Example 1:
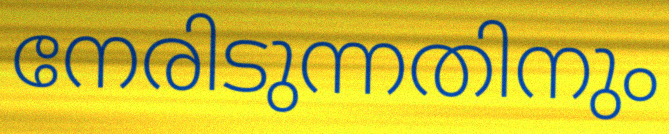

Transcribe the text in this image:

നേരിടുന്നതിനും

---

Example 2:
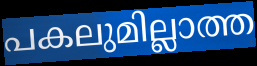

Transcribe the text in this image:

പകലുമില്ലാത്ത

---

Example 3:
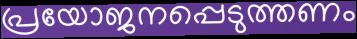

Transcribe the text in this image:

പ്രയോജനപ്പെടുത്തണം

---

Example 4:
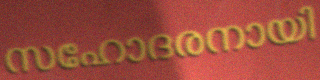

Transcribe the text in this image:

സഹോദരനായി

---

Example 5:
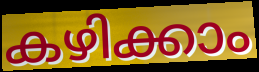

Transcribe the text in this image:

കഴിക്കാം